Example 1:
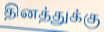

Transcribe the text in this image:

தினத்துக்கு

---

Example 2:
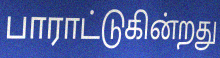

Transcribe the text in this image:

பாராட்டுகின்றது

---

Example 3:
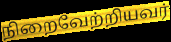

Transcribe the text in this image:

நிறைவேற்றியவர்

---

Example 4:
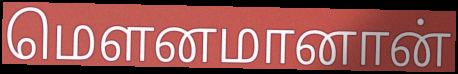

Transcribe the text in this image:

மௌனமானான்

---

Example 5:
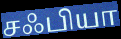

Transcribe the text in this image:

சஃபியா